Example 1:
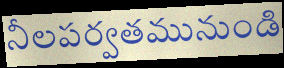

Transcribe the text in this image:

నీలపర్వతమునుండి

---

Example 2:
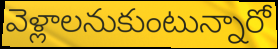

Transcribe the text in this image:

వెళ్లాలనుకుంటున్నారో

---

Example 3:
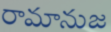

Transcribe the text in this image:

రామానుజ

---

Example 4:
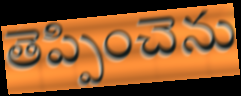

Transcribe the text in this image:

తెప్పించెను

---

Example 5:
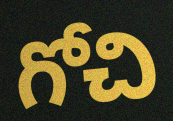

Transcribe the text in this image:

గోచి